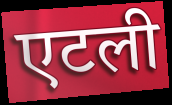
एटली